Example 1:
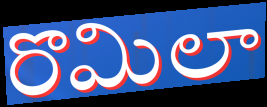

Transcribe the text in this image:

రొమిలా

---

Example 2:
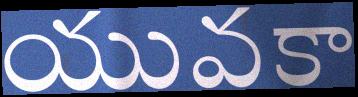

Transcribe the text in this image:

యువకా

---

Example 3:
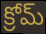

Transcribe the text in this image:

క్రోమ్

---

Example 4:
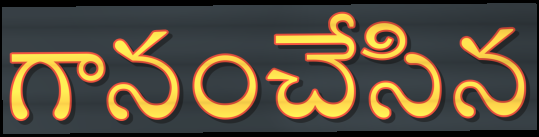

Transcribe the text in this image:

గానంచేసిన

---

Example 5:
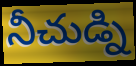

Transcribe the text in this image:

నీచుడ్ని